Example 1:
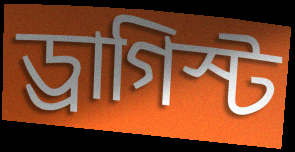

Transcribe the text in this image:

ড্রাগিস্ট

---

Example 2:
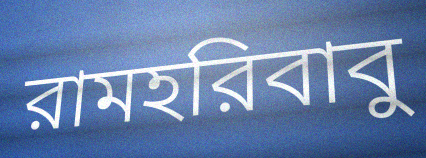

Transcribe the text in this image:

রামহরিবাবু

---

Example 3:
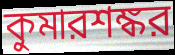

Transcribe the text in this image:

কুমারশঙ্কর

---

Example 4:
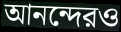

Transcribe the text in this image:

আনন্দেরও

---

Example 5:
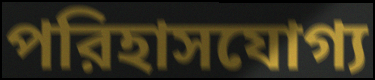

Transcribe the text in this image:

পরিহাসযোগ্য